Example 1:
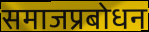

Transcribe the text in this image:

समाजप्रबोधन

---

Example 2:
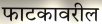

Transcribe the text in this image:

फाटकावरील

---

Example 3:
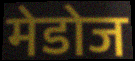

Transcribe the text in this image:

मेडोज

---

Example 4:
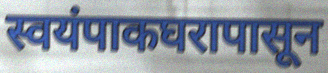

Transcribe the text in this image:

स्वयंपाकघरापासून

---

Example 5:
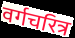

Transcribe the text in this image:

वर्गचरित्र